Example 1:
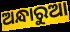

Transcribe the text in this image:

ଅନ୍ଧାରୁଆ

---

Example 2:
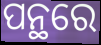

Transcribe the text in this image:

ପନ୍ଥରେ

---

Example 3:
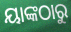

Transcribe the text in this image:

ୟାଙ୍କଠାରୁ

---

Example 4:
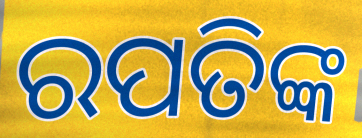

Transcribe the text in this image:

ରପତିଙ୍କ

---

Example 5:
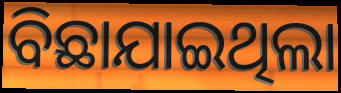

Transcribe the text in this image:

ବିଛାଯାଇଥିଲା